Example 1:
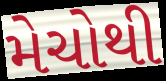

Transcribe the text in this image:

મેચોથી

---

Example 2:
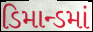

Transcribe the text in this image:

ડિમાન્ડમાં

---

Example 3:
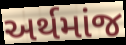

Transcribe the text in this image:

અર્થમાંજ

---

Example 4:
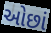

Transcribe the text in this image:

ઓછાં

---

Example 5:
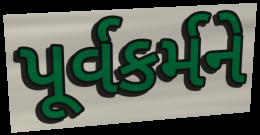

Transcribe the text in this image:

પૂર્વકર્મને